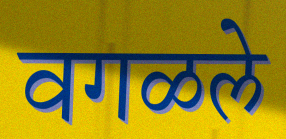
वगळले